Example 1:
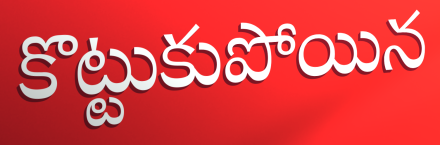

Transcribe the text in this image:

కొట్టుకుపోయిన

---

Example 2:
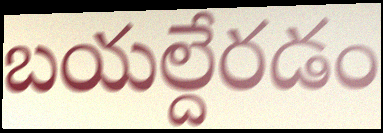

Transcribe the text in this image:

బయల్దేరడం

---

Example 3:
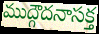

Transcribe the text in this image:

ముద్గౌదనాసక్త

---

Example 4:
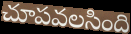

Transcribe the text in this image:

చూపవలసింది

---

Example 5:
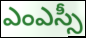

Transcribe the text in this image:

ఎంఎస్సీ